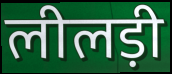
लीलड़ी